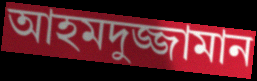
আহমদুজ্জামান